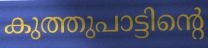
കുത്തുപാട്ടിന്റെ